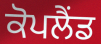
ਕੋਪਲੈਂਡ